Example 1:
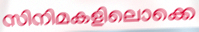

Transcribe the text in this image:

സിനിമകളിലൊക്കെ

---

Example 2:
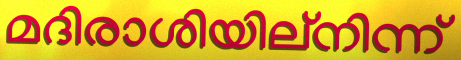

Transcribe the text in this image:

മദിരാശിയില്നിന്ന്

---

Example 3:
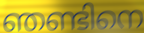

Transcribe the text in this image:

ഞണ്ടിനെ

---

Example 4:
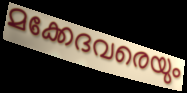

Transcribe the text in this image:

മക്കേദവരെയും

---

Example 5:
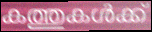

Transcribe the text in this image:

കത്തുകൾക്ക്